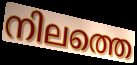
നിലത്തെ